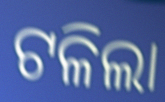
ଟଳିଲା